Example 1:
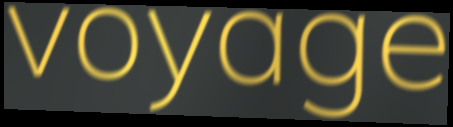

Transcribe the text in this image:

voyage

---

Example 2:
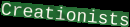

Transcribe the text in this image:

Creationists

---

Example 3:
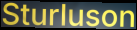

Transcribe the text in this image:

Sturluson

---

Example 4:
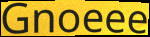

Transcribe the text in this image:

Gnoeee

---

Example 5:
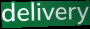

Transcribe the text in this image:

delivery